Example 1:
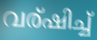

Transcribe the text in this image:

വര്ഷിച്ച്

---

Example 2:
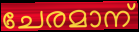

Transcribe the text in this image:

ചേരമാന്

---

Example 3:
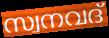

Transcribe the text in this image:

സ്വനവദ്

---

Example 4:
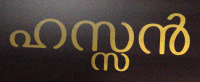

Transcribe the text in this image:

ഹസ്സൻ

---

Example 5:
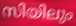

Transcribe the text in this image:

സിയിലും